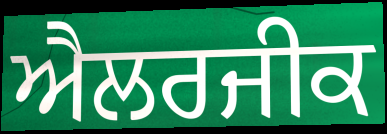
ਐਲਰਜੀਕ